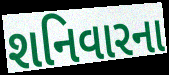
શનિવારના